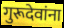
गुरूदेवांना